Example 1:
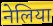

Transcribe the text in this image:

नेलिया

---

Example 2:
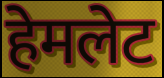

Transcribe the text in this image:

हेमलेट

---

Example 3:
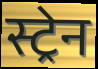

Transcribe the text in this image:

स्ट्रेन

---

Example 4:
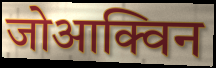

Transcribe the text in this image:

जोआक्विन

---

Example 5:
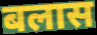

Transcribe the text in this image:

बलास